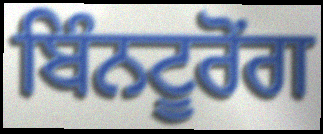
ਬਿੰਨਟੂਰੋਂਗ